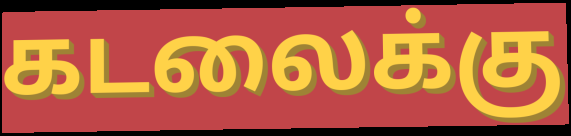
கடலைக்கு